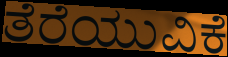
ತೆರೆಯುವಿಕೆ